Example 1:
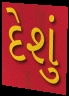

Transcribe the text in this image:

દેશું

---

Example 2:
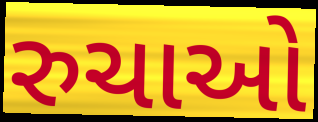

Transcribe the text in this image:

રુચાઓ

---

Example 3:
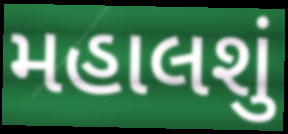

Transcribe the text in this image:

મહાલશું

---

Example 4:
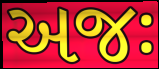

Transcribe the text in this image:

અજઃ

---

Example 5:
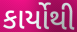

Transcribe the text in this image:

કાર્યોથી